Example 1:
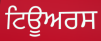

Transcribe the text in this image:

ਟਿਊਅਰਸ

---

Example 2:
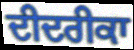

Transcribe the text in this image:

ਦੀਦਰੀਕਾ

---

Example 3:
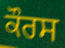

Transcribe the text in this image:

ਕੌਰਸ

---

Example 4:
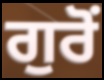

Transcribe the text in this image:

ਗੁਰੋਂ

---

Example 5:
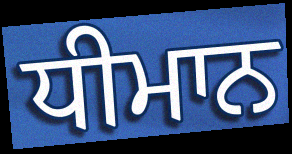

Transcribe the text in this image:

ਧੀਮਾਨ